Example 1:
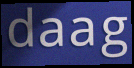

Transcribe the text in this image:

daag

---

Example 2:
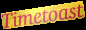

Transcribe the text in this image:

Timetoast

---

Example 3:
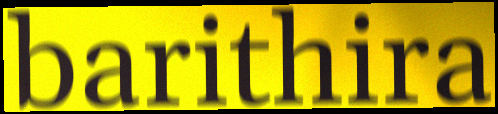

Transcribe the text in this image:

barithira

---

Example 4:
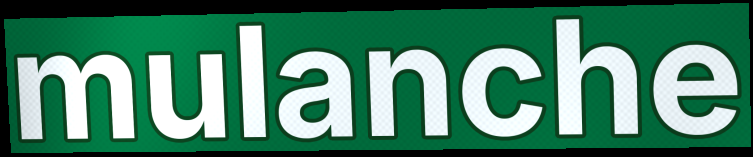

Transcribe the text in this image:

mulanche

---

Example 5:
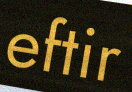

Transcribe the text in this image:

eftir